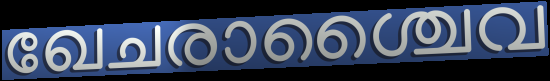
ഖേചരാശ്ചൈവ